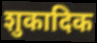
शुकादिक